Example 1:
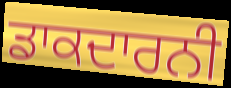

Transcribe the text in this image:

ਡਾਕਦਾਰਨੀ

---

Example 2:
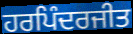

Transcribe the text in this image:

ਹਰਪਿੰਦਰਜੀਤ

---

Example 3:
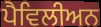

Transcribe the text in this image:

ਪੈਵਿਲੀਅਨ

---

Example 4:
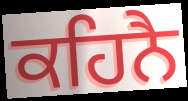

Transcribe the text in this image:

ਕਹਿਨੈ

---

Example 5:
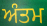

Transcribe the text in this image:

ਅੰਤਮ